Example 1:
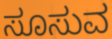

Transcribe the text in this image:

ಸೂಸುವ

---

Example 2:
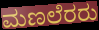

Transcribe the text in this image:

ಮಣಲೆರರು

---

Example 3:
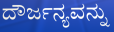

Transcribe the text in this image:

ದೌರ್ಜನ್ಯವನ್ನು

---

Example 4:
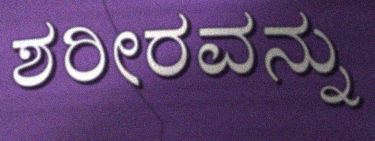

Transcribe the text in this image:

ಶರೀರವನ್ನು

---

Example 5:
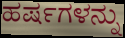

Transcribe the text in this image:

ಹರ್ಷಗಳನ್ನು